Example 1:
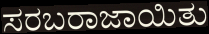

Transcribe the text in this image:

ಸರಬರಾಜಾಯಿತು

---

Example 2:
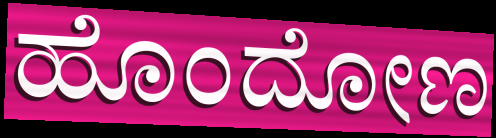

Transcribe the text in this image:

ಹೊಂದೋಣ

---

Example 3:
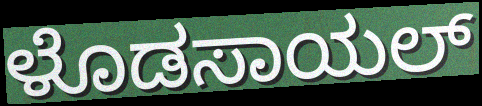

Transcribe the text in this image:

ಳೊಡಸಾಯಲ್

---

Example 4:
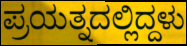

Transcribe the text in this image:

ಪ್ರಯತ್ನದಲ್ಲಿದ್ದಳು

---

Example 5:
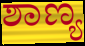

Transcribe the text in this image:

ಶಾಣ್ಯ